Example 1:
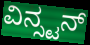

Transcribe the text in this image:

ವಿನ್ಸ್ಟನ್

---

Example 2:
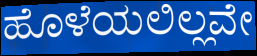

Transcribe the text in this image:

ಹೊಳೆಯಲಿಲ್ಲವೇ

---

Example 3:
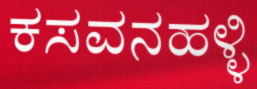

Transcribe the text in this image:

ಕಸವನಹಳ್ಳಿ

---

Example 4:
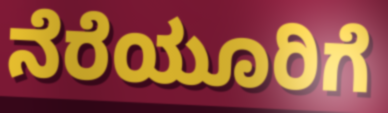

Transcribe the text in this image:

ನೆರೆಯೂರಿಗೆ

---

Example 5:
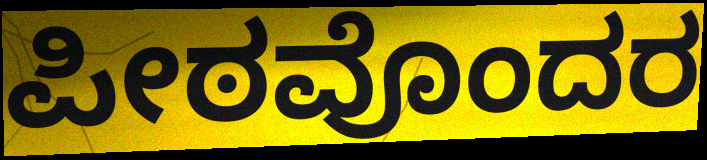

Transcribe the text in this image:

ಪೀಠವೊಂದರ